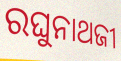
ରଘୁନାଥଜୀ